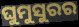
ଘୁମୁସୁରର